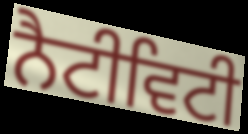
ਨੈਟੀਵਿਟੀ